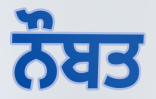
ਨੌਬਤ